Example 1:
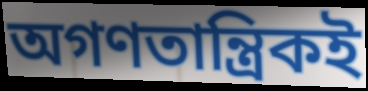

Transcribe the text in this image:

অগণতান্ত্রিকই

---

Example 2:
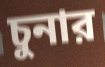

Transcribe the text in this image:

চুনার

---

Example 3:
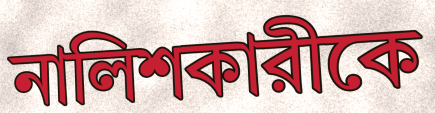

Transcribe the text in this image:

নালিশকারীকে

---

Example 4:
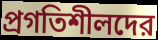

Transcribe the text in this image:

প্রগতিশীলদের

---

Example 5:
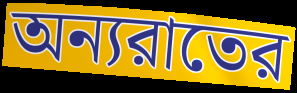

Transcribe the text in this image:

অন্যরাতের